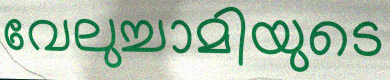
വേലുച്ചാമിയുടെ